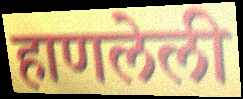
हाणलेली